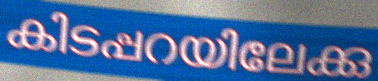
കിടപ്പറയിലേക്കു